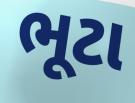
ભૂટા